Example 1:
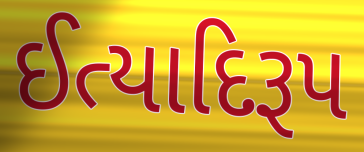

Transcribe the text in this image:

ઈત્યાદિરૂપ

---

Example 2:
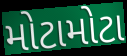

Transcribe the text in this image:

મોટામોટા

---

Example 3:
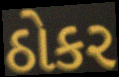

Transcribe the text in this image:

ઠોકર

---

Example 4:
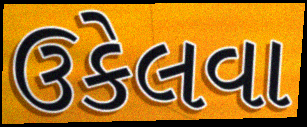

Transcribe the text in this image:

ઉકેલવા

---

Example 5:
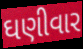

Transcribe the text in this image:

ઘણીવાર